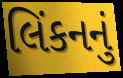
લિંકનનું